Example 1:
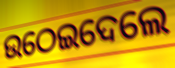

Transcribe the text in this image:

ଉଠେଇଦେଲେ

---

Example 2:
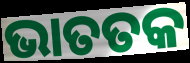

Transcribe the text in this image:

ଭାତତକ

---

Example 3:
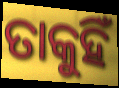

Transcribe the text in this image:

ତାକୁହିଁ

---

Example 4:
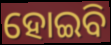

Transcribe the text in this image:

ହୋଇିବ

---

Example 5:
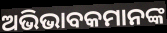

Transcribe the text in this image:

ଅଭିଭାବକମାନଙ୍କ